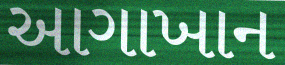
આગાખાન